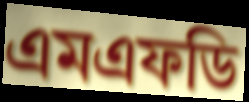
এমএফডি